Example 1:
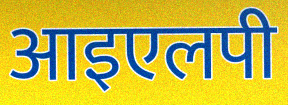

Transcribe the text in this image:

आइएलपी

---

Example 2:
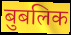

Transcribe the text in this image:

बुबलिक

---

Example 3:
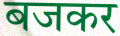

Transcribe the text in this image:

बजकर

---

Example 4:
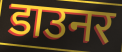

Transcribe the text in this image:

डाउनर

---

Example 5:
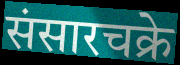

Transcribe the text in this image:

संसारचक्रे